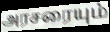
அரசரையும்